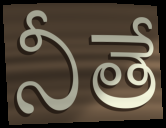
నీతే